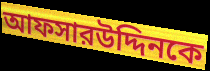
আফসারউদ্দিনকে